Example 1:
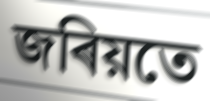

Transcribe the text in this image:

জৰিয়তে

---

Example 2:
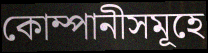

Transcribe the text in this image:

কোম্পানীসমূহে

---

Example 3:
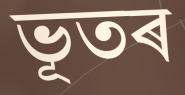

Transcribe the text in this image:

ভূতৰ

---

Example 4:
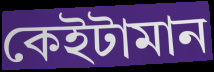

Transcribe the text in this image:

কেইটামান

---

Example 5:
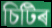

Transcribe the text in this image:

চিটিৰ